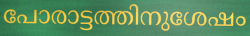
പോരാട്ടത്തിനുശേഷം